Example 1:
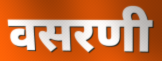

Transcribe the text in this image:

वसरणी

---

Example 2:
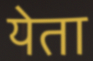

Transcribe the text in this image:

येता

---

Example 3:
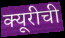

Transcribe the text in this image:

क्यूरीची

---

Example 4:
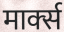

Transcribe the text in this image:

मार्क्‍स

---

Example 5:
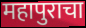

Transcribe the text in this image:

महापुराचा